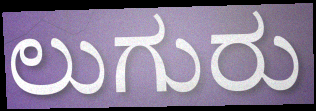
ಲುಗುರು